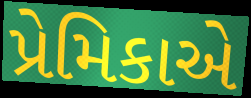
પ્રેમિકાએ